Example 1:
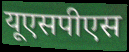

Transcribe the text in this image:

यूएसपीएस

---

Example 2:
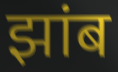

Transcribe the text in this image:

झांब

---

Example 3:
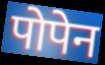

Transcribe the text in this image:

पोपेन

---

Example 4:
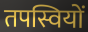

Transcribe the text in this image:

तपस्वियों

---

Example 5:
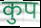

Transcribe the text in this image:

कुप